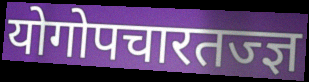
योगोपचारतज्ज्ञ